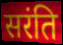
सरंति